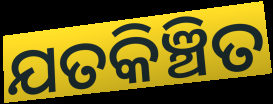
ଯତକିଞ୍ଚିତ